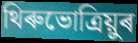
থিৰুভোত্ৰিয়ুৰ